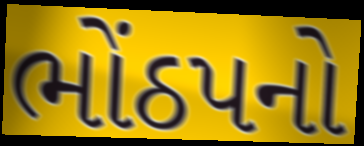
ભોંઠપનો